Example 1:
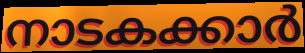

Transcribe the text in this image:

നാടകക്കാർ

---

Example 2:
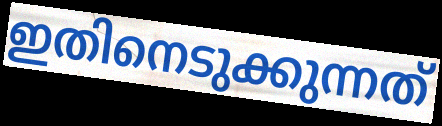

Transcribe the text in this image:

ഇതിനെടുക്കുന്നത്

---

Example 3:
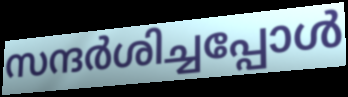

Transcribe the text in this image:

സന്ദർശിച്ചപ്പോൾ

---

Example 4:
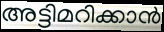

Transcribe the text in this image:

അട്ടിമറിക്കാൻ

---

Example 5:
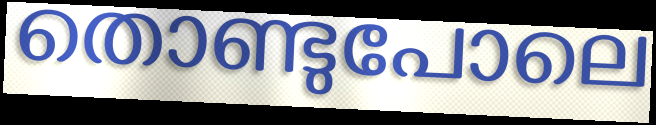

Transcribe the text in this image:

തൊണ്ടുപോലെ